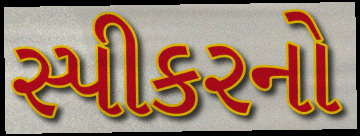
સ્પીકરનો